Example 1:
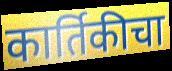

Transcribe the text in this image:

कार्तिकीचा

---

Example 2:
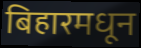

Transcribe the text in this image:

बिहारमधून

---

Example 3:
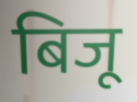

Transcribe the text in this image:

बिजू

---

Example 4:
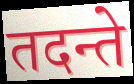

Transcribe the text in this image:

तदन्ते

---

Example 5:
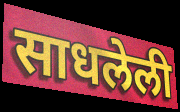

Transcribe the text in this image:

साधलेली